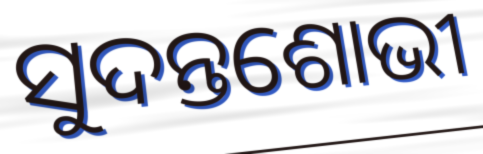
ସୁଦନ୍ତଶୋଭୀ